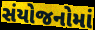
સંયોજનોમાં